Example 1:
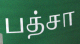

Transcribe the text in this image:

பத்சா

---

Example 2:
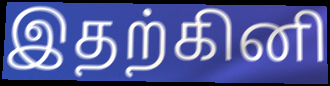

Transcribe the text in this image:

இதற்கினி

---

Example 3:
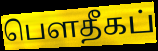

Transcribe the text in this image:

பௌதீகப்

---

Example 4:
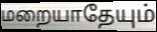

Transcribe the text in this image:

மறையாதேயும்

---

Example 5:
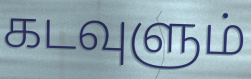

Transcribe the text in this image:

கடவுளும்